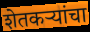
शेतकर्‍यांचा